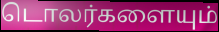
டொலர்களையும்